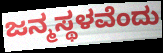
ಜನ್ಮಸ್ಥಳವೆಂದು